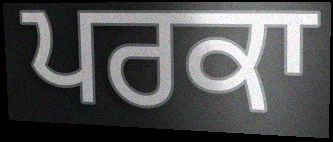
ਪਰਕਾ